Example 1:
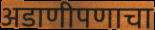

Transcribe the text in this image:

अडाणीपणाचा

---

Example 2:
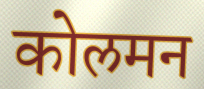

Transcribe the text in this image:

कोलमन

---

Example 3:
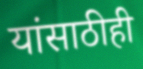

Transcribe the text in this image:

यांसाठीही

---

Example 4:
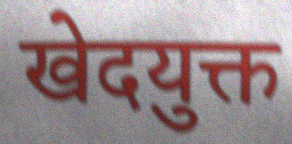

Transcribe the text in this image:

खेदयुक्त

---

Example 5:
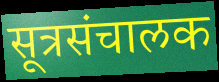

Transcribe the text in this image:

सूत्रसंचालक